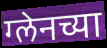
ग्लेनच्या